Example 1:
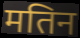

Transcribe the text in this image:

मतिन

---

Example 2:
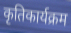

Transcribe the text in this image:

कृतिकार्यक्रम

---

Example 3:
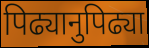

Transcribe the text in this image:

पिढ्यानुपिढ्या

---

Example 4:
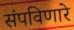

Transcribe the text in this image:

संपविणारे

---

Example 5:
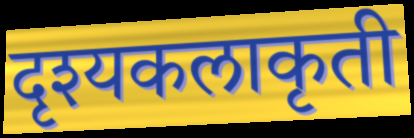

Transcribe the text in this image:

दृश्यकलाकृती